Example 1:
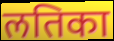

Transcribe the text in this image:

लतिका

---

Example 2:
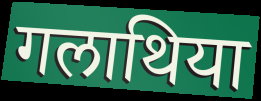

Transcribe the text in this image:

गलाथिया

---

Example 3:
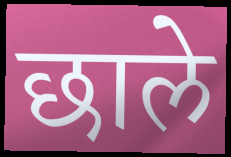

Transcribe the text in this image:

छाले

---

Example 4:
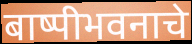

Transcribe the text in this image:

बाष्पीभवनाचे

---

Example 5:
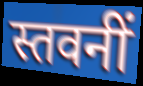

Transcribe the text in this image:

स्तवनीं